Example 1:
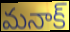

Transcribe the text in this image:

మనాక్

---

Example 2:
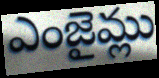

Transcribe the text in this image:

ఎంజైమ్లు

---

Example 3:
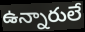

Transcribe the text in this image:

ఉన్నారులే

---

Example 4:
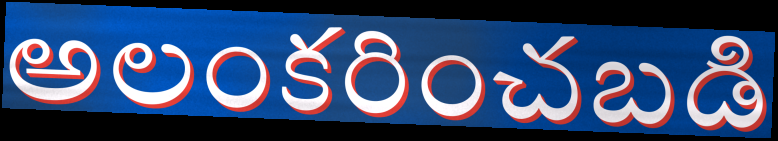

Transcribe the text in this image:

అలంకరించబడి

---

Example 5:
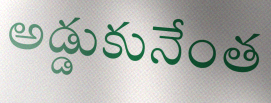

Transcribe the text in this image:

అడ్డుకునేంత